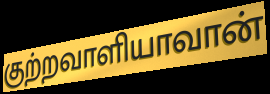
குற்றவாளியாவான்